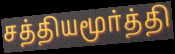
சத்தியமூர்த்தி